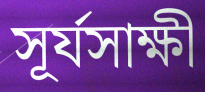
সূর্যসাক্ষী